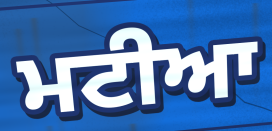
ਮਟੀਆ